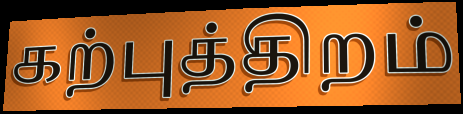
கற்புத்திறம்